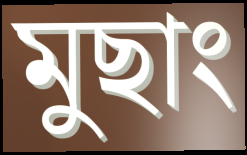
মুছাং